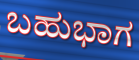
ಬಹುಭಾಗ